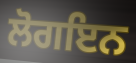
ਲੋਗਇਨ